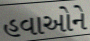
હવાઓને